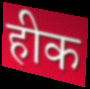
हीक